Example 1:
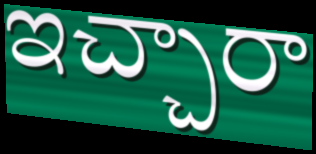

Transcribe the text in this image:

ఇచ్చారా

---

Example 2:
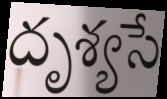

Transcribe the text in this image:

దృశ్యసే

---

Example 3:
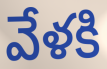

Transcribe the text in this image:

వేళకి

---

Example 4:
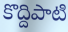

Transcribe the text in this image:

కొద్దిపాటి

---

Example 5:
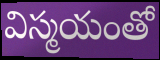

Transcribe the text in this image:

విస్మయంతో